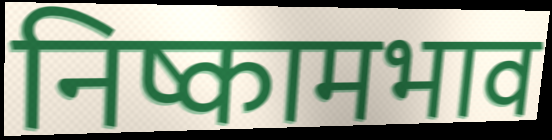
निष्कामभाव